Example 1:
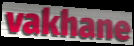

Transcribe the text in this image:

vakhane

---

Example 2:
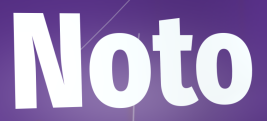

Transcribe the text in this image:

Noto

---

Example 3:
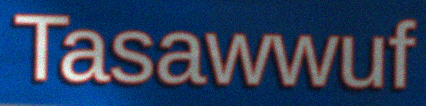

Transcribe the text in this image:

Tasawwuf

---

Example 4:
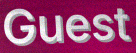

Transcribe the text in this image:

Guest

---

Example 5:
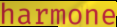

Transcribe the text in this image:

harmone